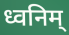
ध्वनिम्